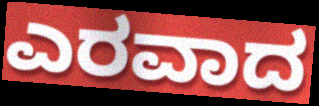
ಎರವಾದ